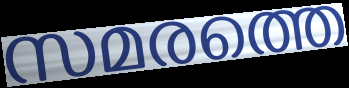
സമരത്തെ